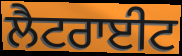
ਲੈਟਰਾਈਟ